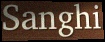
Sanghi